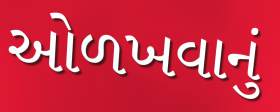
ઓળખવાનું